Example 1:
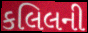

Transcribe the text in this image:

કલિલની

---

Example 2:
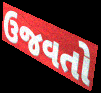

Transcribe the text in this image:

ઉજવતો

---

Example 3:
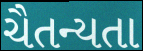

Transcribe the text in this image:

ચૈતન્યતા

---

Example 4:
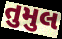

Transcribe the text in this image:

તુમુલ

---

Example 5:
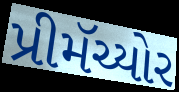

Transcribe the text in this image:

પ્રીમૅચ્યોર